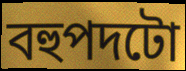
বহুপদটো